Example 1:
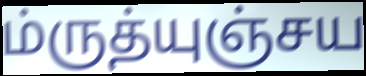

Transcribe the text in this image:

ம்ருத்யுஞ்சய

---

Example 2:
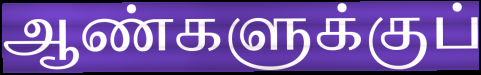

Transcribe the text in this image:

ஆண்களுக்குப்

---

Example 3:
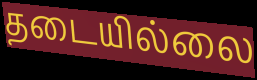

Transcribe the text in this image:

தடையில்லை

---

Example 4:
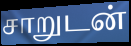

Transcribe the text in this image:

சாறுடன்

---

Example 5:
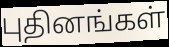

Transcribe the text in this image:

புதினங்கள்